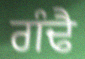
ਗੰਢੈ